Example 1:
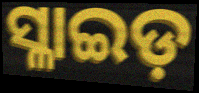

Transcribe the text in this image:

ସ୍ଳାଇଡ଼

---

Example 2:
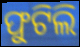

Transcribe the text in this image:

ଫୁଟିଲି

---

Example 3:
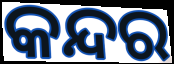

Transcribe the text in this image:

କନ୍ଦର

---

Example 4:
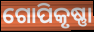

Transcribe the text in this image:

ଗୋପିକୃଷ୍ଣା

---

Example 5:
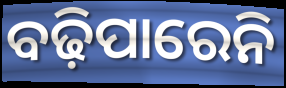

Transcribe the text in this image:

ବଢ଼ିପାରେନି